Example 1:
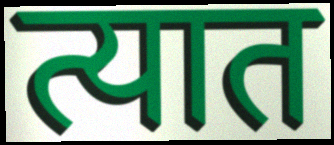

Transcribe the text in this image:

त्यात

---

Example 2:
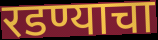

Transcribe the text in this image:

रडण्याचा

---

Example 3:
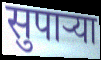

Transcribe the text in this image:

सुपार्‍या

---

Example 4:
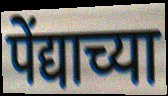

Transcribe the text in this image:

पेंद्याच्या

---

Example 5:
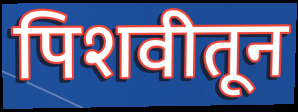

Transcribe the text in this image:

पिशवीतून